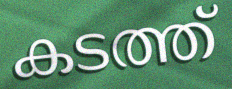
കടത്ത്